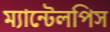
ম্যান্টেলপিস